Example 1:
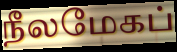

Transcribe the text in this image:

நீலமேகப்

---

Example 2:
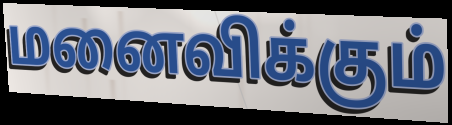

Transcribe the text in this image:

மனைவிக்கும்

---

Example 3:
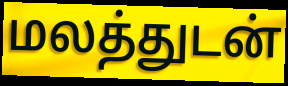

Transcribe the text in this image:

மலத்துடன்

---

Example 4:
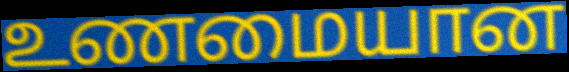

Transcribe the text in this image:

உணமையான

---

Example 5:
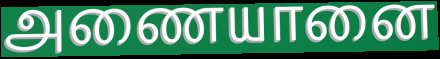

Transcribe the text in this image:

அணையானை